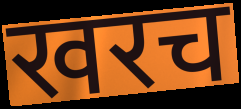
खरच